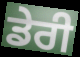
ਡੇਰੀ